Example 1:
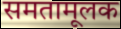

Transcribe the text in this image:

समतामूलक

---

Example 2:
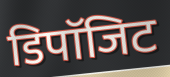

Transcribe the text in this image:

डिपॉजिट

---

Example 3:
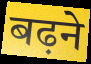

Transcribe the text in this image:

बढ़ने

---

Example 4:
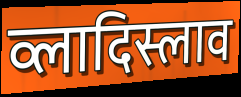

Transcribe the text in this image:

व्लादिस्लाव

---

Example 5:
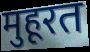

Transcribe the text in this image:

मुहूरत